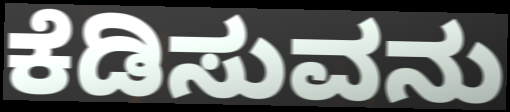
ಕೆಡಿಸುವನು